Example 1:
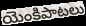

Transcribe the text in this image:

యెంకిపాటలు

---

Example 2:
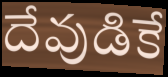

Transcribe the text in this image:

దేవుడికే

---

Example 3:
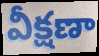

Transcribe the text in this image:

వీక్షణా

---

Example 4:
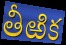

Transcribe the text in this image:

తీఱిక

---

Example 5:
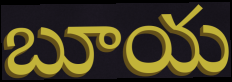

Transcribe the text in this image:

బూయ